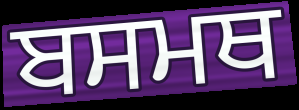
ਬਸਮਥ